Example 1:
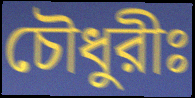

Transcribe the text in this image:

চৌধুরীঃ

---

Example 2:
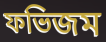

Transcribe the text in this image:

ফভিজম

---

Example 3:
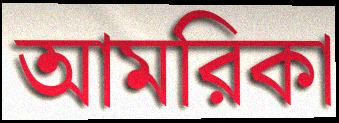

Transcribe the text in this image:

আমরিকা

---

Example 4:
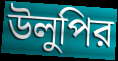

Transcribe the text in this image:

উলুপির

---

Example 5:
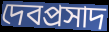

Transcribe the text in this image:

দেবপ্রসাদ